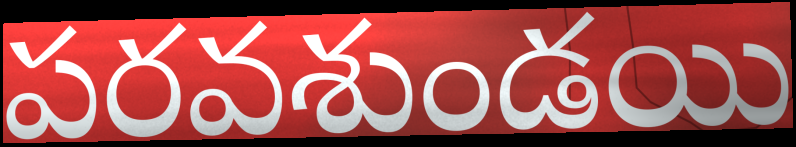
పరవశుండయి